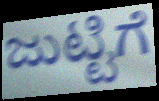
ಜುಟ್ಟಿಗೆ